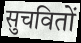
सुचवितों